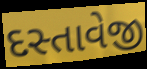
દસ્તાવેજી